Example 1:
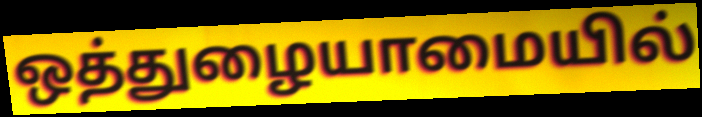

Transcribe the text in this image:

ஒத்துழையாமையில்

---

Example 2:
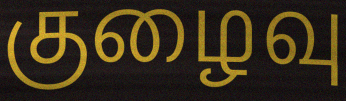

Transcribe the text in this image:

குழைவு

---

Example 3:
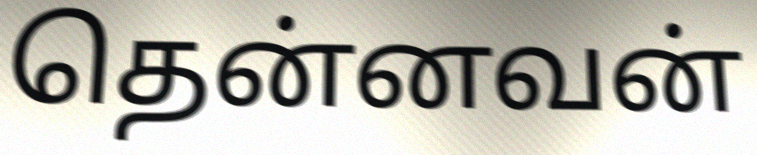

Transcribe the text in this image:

தென்னவன்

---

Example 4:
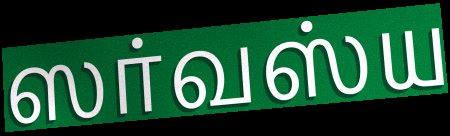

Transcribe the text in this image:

ஸர்வஸ்ய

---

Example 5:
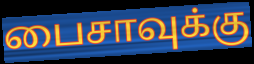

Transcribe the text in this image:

பைசாவுக்கு